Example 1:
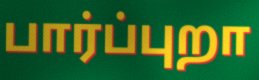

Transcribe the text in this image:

பார்ப்புறா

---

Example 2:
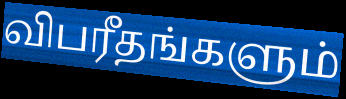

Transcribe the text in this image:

விபரீதங்களும்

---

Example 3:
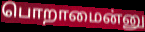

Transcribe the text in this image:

பொறாமைன்னு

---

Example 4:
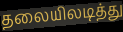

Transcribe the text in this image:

தலையிலடித்து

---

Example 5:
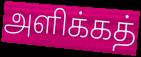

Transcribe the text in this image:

அளிக்கத்